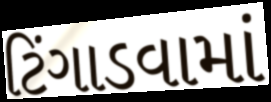
ટિંગાડવામાં